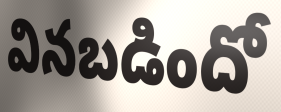
వినబడిందో